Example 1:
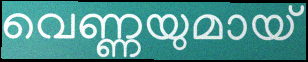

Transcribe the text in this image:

വെണ്ണയുമായ്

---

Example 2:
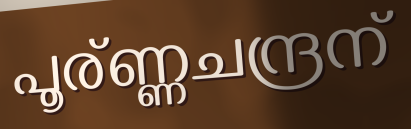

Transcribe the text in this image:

പൂര്ണ്ണചന്ദ്രന്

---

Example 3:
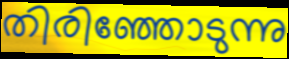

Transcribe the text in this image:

തിരിഞ്ഞോടുന്നു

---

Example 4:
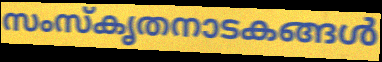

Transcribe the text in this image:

സംസ്കൃതനാടകങ്ങൾ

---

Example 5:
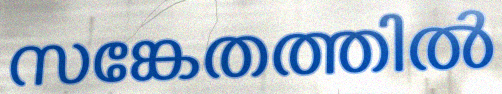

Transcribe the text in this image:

സങ്കേതത്തിൽ